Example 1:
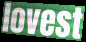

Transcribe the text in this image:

lovest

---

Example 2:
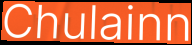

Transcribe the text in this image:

Chulainn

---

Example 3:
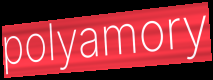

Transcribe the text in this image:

polyamory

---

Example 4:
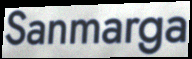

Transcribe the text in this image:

Sanmarga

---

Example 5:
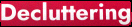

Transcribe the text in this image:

Decluttering